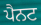
ਪੈਨਟ